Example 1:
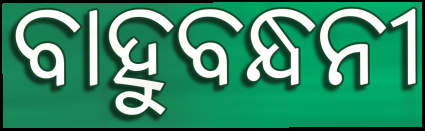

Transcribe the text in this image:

ବାହୁବନ୍ଧନୀ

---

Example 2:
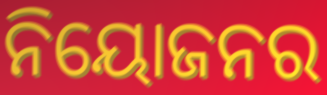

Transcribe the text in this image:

ନିୟୋଜନର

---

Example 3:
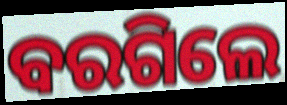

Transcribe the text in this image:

ବରଗିଲେ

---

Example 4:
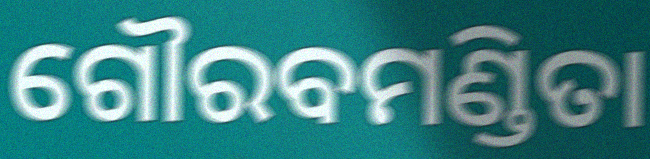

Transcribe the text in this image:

ଗୌରବମଣ୍ଡିତା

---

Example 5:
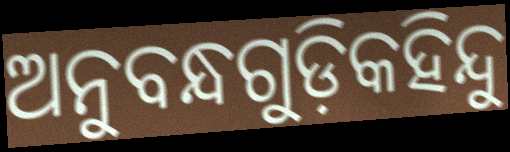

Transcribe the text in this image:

ଅନୁବନ୍ଧଗୁଡ଼ିକହିନ୍ଦୁ